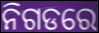
ନିଗଡରେ